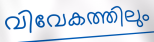
വിവേകത്തിലും